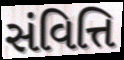
સંવિત્તિ